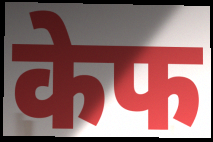
केफ